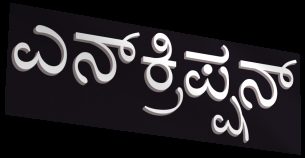
ಎನ್‌ಕ್ರಿಪ್ಷನ್